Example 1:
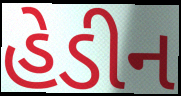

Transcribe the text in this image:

હેડીન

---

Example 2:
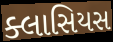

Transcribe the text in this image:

ક્લાસિયસ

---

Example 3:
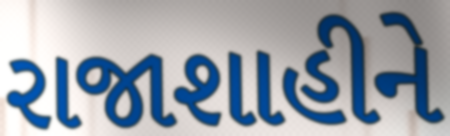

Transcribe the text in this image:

રાજાશાહીને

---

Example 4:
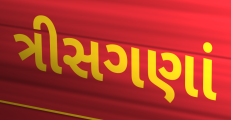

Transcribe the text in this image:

ત્રીસગણાં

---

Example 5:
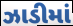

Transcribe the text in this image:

ઝાડીમાં